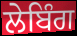
ਲੇਬਿੰਗ